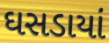
ઘસડાયાં